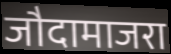
जौदामाजरा